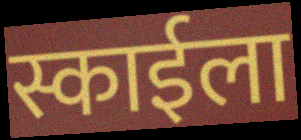
स्काईला